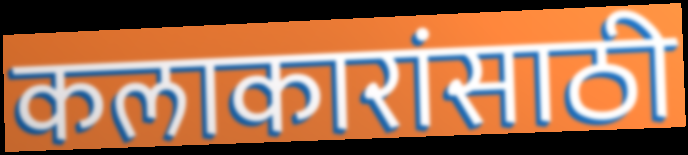
कलाकारांसाठी